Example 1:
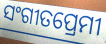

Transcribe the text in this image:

ସଂଗୀତପ୍ରେମୀ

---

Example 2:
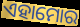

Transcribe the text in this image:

ଏହାମୋର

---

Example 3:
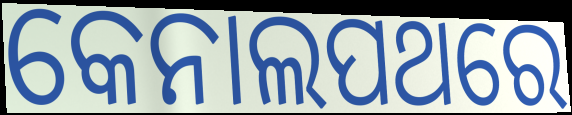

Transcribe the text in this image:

କେନାଲପଥରେ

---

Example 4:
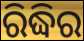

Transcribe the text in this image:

ରିଦ୍ଧିର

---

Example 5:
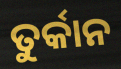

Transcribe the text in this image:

ତୁର୍କାନ